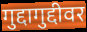
गुद्दागुद्दीवर